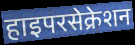
हाइपरसेक्रेशन